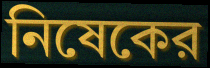
নিষেকের